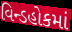
વિન્ડહોકમાં